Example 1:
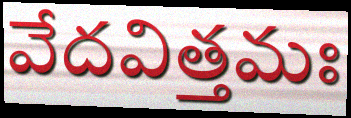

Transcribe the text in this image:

వేదవిత్తమః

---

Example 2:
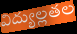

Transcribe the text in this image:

విద్యుల్లతల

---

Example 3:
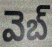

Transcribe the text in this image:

వెబ్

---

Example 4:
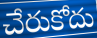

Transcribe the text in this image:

చేరుకోదు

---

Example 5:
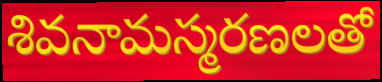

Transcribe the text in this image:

శివనామస్మరణలతో